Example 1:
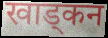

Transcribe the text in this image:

खाड्कन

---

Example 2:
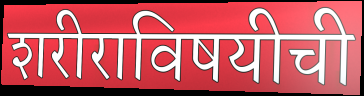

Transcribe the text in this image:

शरीराविषयीची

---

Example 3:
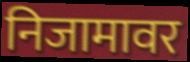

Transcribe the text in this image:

निजामावर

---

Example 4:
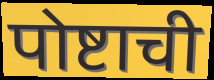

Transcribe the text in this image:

पोष्टाची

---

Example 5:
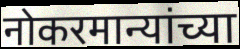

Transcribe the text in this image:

नोकरमान्यांच्या